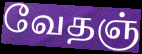
வேதஞ்